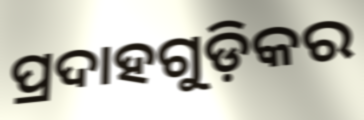
ପ୍ରଦାହଗୁଡ଼ିକର